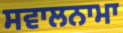
ਸਵਾਲਨਾਮਾ